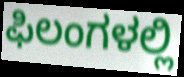
ಫಿಲಂಗಳಲ್ಲಿ